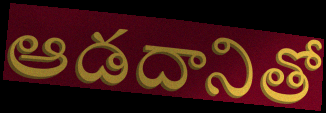
ఆడదానితో